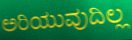
ಅರಿಯುವುದಿಲ್ಲ